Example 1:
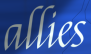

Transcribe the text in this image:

allies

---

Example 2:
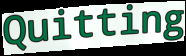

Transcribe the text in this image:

Quitting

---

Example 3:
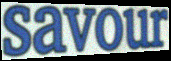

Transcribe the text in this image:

savour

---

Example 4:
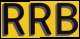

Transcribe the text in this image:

RRB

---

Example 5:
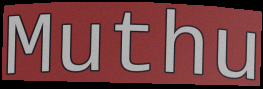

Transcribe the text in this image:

Muthu